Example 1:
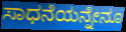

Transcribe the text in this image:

ಸಾಧನೆಯನ್ನೇನೂ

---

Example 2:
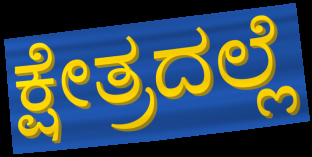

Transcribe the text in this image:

ಕ್ಷೇತ್ರದಲ್ಲೆ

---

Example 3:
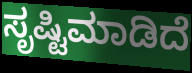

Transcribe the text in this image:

ಸೃಷ್ಟಿಮಾಡಿದೆ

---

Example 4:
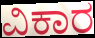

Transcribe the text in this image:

ವಿಕಾರ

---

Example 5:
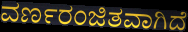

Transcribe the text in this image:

ವರ್ಣರಂಜಿತವಾಗಿದೆ